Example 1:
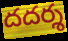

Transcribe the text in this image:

దదర్శ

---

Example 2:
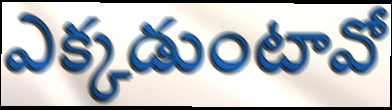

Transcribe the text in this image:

ఎక్కడుంటావో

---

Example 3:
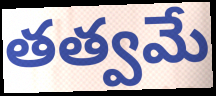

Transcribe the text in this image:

తత్వమే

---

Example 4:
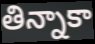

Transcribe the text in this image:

తిన్నాకా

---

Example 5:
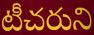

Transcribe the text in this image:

టీచరుని